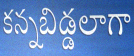
కన్నబిడ్డలాగా